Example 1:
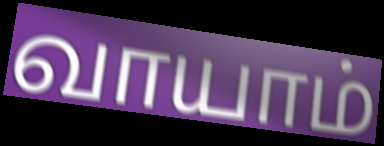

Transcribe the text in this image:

வாயாம்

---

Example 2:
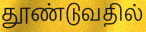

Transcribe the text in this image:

தூண்டுவதில்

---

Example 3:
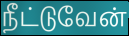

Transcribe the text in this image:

நீட்டுவேன்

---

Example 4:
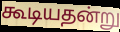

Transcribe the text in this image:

கூடியதன்று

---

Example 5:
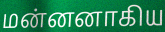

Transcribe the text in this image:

மன்னனாகிய